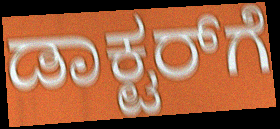
ಡಾಕ್ಟರ್‌ಗೆ